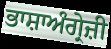
ਭਾਸ਼ਾਅੰਗ੍ਰੇਜ਼ੀ